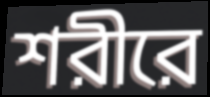
শরীরে